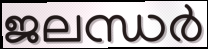
ജലന്ധർ